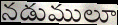
నడుములూ